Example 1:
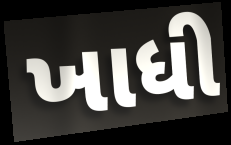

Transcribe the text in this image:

ખાધી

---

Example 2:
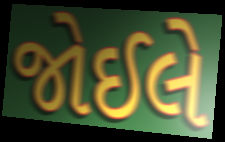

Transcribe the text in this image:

જોઈલે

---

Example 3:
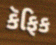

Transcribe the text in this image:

કૅફિક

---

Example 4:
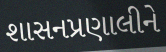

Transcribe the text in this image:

શાસનપ્રણાલીને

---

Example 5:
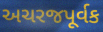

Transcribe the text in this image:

અચરજપૂર્વક